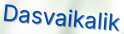
Dasvaikalik